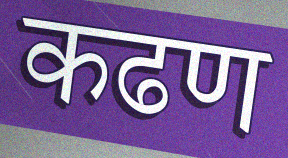
कढण